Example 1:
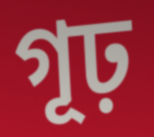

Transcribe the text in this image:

গূঢ়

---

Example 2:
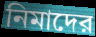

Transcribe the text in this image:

নিমাদের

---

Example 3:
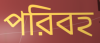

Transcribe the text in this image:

পরিবহ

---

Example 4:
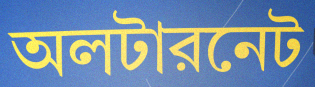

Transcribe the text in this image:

অলটারনেট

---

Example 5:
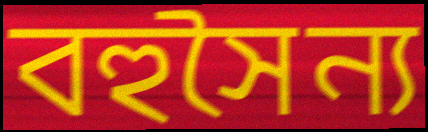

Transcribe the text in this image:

বহুসৈন্য